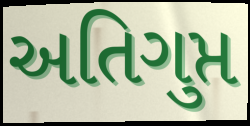
અતિગુપ્ત